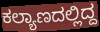
ಕಲ್ಯಾಣದಲ್ಲಿದ್ದ